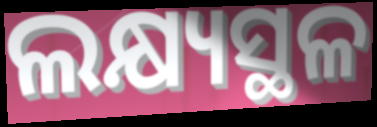
ଲକ୍ଷ୍ୟସ୍ଥଳ